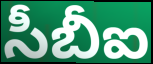
సీబీఐ